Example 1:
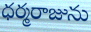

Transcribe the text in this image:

ధర్మరాజును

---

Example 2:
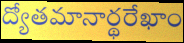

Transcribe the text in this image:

ద్యోతమానార్థరేఖాం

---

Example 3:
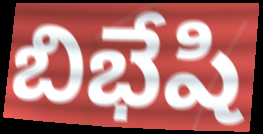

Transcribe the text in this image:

బిభేషి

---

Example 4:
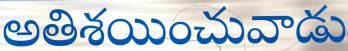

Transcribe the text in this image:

అతిశయించువాడు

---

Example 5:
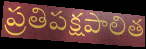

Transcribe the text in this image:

ప్రతిపక్షపాలిత